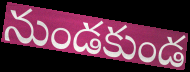
నుండకుండ